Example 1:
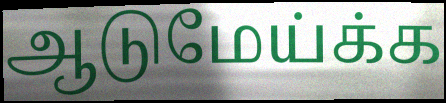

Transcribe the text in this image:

ஆடுமேய்க்க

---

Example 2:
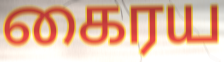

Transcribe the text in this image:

கைரய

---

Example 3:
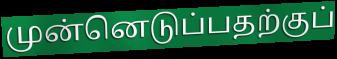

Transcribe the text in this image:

முன்னெடுப்பதற்குப்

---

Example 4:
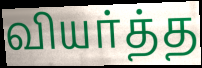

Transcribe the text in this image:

வியர்த்த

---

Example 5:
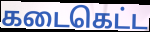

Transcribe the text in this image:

கடைகெட்ட